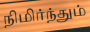
நிமிர்ந்தும்